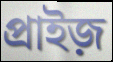
প্রাইজ়